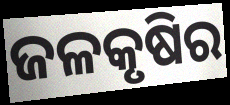
ଜଳକୃଷିର